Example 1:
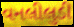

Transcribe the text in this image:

વનલીલુડી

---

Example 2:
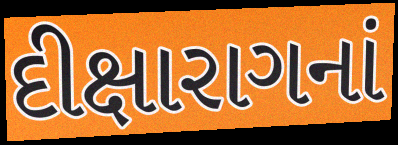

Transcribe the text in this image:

દીક્ષારાગનાં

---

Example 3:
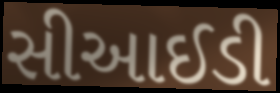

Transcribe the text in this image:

સીઆઈડી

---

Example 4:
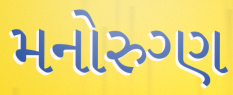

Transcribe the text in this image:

મનોરુગ્ણ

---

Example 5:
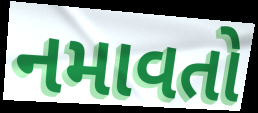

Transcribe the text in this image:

નમાવતો